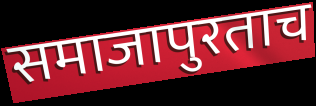
समाजापुरताच